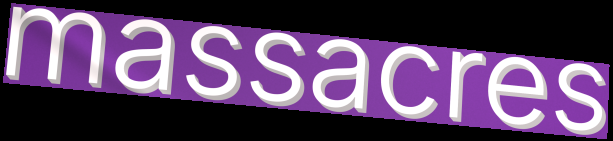
massacres